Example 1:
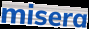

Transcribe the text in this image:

misera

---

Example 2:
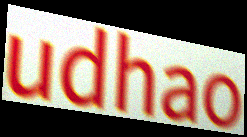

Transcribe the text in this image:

udhao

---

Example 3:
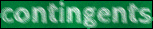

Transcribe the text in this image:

contingents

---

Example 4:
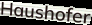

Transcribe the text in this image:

Haushofer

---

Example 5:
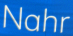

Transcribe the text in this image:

Nahr